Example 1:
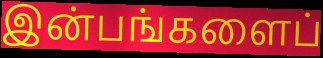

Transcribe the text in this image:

இன்பங்களைப்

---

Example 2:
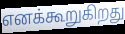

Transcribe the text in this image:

எனக்கூறுகிறது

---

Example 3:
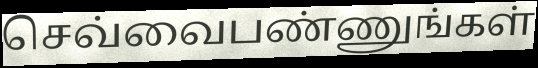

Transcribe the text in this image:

செவ்வைபண்ணுங்கள்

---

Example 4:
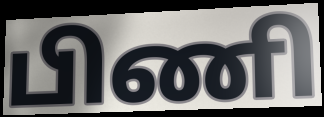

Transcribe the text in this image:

பிணி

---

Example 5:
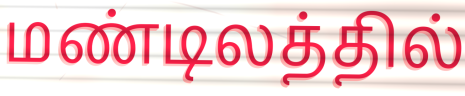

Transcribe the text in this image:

மண்டிலத்தில்